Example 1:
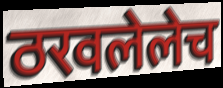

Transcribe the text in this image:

ठरवलेलेच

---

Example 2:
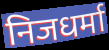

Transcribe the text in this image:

निजधर्मा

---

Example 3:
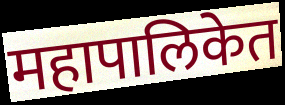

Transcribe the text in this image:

महापालिकेत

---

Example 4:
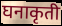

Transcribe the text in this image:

घनाकृती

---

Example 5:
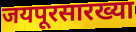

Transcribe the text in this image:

जयपूरसारख्या